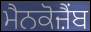
ਮੈਨਕੋਜ਼ੈਂਬ